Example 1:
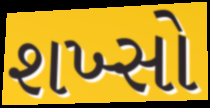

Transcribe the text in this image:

શખ્સો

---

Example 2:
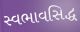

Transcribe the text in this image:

સ્વભાવસિદ્ધ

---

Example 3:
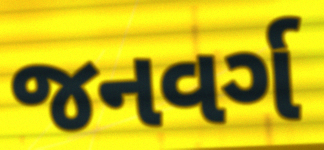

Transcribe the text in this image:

જનવર્ગ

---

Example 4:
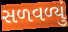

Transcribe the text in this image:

સળવળ્યું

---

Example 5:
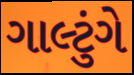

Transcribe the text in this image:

ગાલ્ટુંગે